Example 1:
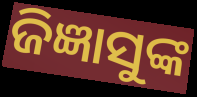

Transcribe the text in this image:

ଜିଜ୍ଞାସୁଙ୍କ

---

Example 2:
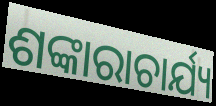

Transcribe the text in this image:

ଶଙ୍କାରାଚାର୍ଯ୍ୟ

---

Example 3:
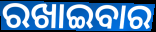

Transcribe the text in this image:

ରଖାଇବାର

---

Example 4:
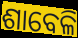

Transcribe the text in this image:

ଶାବେଳି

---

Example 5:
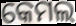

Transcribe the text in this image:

କେମଲ